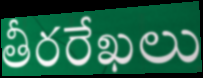
తీరరేఖలు